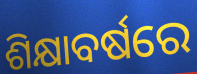
ଶିକ୍ଷାବର୍ଷରେ